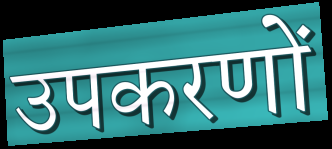
उपकरणों